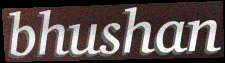
bhushan